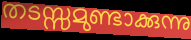
തടസ്സമുണ്ടാക്കുന്നു